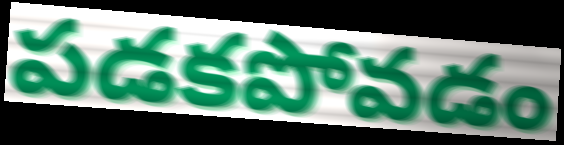
పడకపోవడం